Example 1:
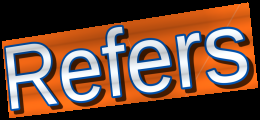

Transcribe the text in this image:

Refers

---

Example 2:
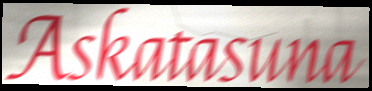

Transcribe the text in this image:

Askatasuna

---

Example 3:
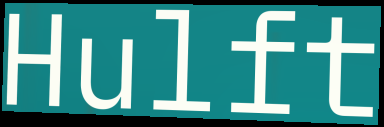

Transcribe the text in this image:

Hulft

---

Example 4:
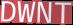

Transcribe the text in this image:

DWNT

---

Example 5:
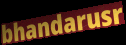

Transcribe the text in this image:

bhandarusr